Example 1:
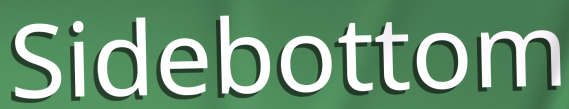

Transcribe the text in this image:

Sidebottom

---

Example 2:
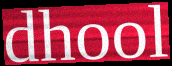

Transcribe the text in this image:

dhool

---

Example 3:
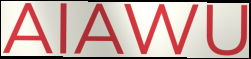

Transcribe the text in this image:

AIAWU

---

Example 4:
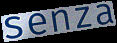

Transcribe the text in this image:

senza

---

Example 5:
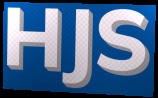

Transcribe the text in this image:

HJS